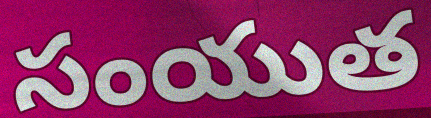
సంయుత